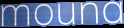
mouna